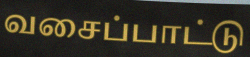
வசைப்பாட்டு